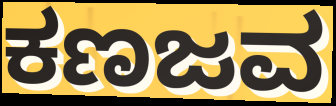
ಕಣಜವ